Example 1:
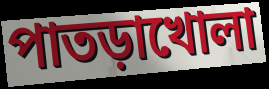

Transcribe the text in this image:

পাতড়াখোলা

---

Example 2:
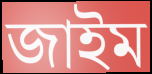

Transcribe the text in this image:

জাইম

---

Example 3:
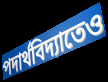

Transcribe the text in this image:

পদার্থবিদ্যাতেও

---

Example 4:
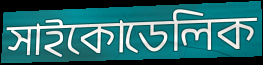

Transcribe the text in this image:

সাইকোডেলিক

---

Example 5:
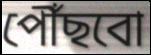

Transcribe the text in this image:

পৌঁছবো